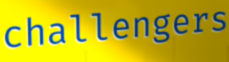
challengers